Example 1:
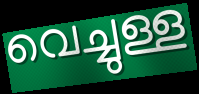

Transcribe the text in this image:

വെച്ചുള്ള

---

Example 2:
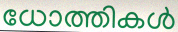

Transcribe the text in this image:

ധോത്തികൾ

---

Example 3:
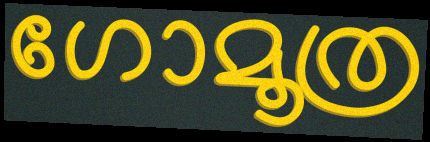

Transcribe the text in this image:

ഗോമൂത്ര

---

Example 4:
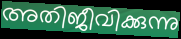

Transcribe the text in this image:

അതിജീവിക്കുന്നു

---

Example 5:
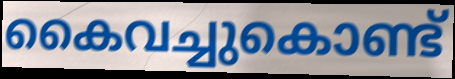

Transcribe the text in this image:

കൈവച്ചുകൊണ്ട്